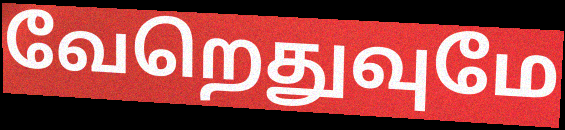
வேறெதுவுமே